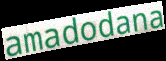
amadodana